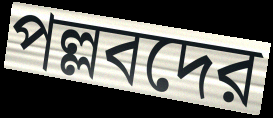
পল্লবদের